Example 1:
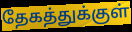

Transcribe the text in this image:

தேகத்துக்குள்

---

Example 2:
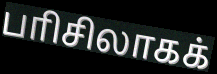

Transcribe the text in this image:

பரிசிலாகக்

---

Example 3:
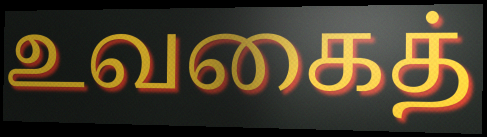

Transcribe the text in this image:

உவகைத்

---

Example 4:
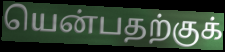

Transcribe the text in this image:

யென்பதற்குக்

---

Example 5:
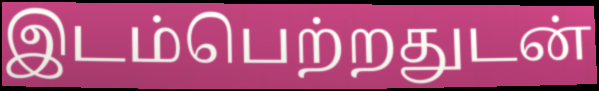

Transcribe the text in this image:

இடம்பெற்றதுடன்